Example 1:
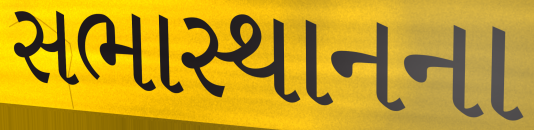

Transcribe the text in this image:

સભાસ્થાનના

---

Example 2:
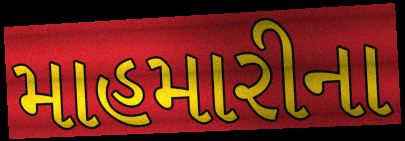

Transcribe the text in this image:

માહમારીના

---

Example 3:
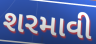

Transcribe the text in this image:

શરમાવી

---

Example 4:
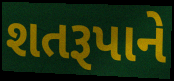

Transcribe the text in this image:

શતરૂપાને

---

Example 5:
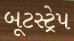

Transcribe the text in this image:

બૂટસ્ટ્રેપ